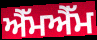
ਐੱਮਐੱਮ